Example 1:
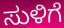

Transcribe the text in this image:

ಸುಳಿಗೆ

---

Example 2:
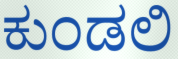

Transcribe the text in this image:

ಕುಂಡಲಿ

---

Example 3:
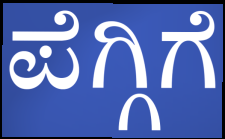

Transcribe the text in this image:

ಪೆಗ್ಗಿಗೆ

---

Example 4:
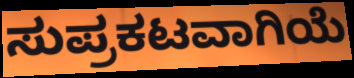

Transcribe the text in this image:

ಸುಪ್ರಕಟವಾಗಿಯೆ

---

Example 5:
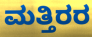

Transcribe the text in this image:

ಮತ್ತಿರರ